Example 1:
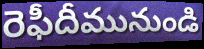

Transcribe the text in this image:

రెఫీదీమునుండి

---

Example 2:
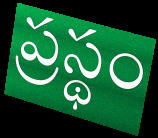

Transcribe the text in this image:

ప్రస్థం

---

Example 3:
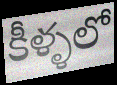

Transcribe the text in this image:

కీళ్ళలో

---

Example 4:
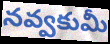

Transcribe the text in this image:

నవ్వకుమీ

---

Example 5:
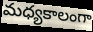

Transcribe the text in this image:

మధ్యకాలంగా